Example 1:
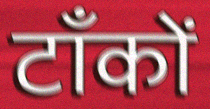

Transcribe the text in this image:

टाँकों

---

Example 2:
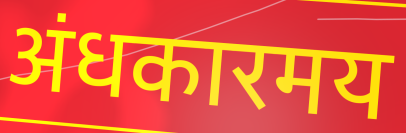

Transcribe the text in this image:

अंधकारमय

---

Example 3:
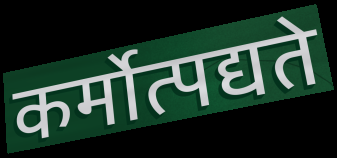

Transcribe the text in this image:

कर्मोत्पद्यते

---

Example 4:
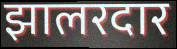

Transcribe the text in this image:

झालरदार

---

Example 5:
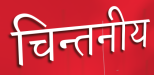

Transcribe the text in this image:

चिन्तनीय